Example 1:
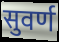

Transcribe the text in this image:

सुवर्ण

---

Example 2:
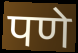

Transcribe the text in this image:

पणे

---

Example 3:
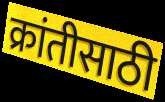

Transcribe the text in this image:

क्रांतीसाठी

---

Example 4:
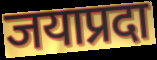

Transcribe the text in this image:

जयाप्रदा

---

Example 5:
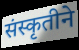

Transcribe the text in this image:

संस्कृतीने